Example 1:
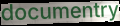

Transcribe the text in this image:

documentry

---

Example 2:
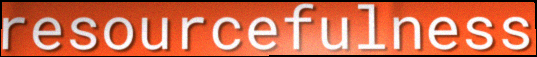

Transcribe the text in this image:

resourcefulness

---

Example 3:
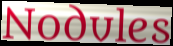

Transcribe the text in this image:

Nodules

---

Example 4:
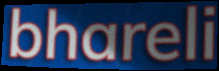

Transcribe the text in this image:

bhareli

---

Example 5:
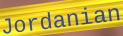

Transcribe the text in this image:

Jordanian